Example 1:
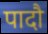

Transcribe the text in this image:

पादौ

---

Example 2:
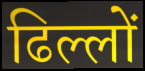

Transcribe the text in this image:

ढिल्लों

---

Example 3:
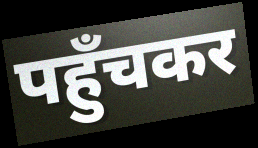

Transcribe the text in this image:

पहुँचकर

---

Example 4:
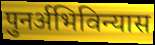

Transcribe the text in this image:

पुनर्अभिविन्यास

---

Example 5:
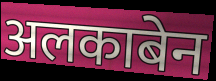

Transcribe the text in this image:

अलकाबेन